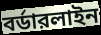
বর্ডারলাইন